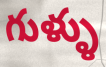
గుళ్ళు